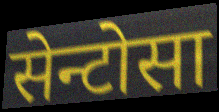
सेन्टोसा